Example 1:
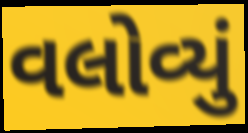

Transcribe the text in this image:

વલોવ્યું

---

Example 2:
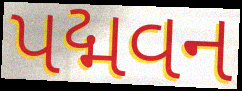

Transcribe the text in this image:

પદ્મવન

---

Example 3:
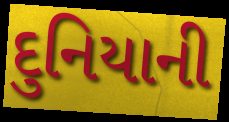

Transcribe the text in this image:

દુનિયાની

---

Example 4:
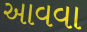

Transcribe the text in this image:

આવવા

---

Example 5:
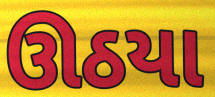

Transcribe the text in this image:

ઊઠયા